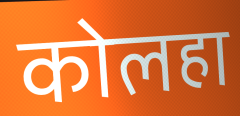
कोलहा